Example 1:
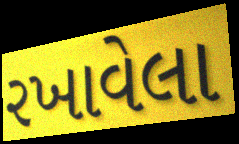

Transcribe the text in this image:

રખાવેલા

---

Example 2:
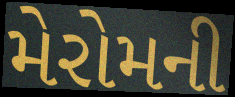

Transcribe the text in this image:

મેરોમની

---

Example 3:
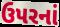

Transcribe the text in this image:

ઉપરનાં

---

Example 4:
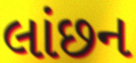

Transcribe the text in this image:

લાંછન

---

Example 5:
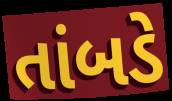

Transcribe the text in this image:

તાંબડે